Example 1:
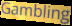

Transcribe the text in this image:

Gambling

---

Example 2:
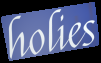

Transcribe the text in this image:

holies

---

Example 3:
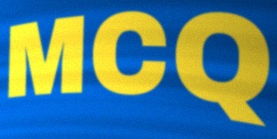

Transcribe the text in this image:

MCQ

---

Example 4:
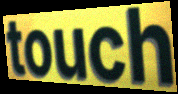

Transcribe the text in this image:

touch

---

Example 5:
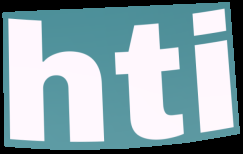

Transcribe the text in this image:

hti